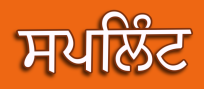
ਸਪਲਿੰਟ